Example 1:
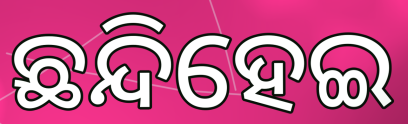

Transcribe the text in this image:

ଛନ୍ଦିହେଇ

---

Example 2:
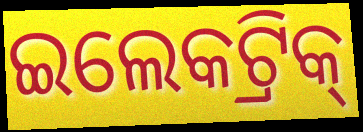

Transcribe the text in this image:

ଇଲେକଟ୍ରିକ୍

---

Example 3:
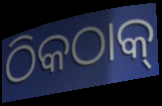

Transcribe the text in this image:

ଠିକଠାକ୍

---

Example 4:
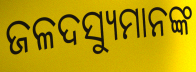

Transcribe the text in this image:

ଜଳଦସ୍ୟୁମାନଙ୍କ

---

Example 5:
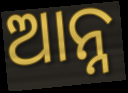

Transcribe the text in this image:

ଆନ୍ନ